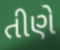
તીણે